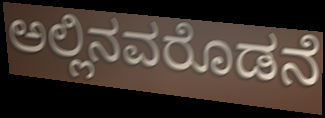
ಅಲ್ಲಿನವರೊಡನೆ